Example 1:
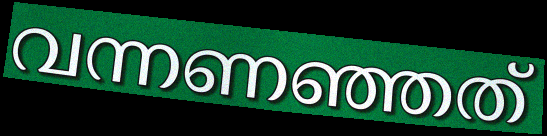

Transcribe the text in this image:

വന്നണഞ്ഞത്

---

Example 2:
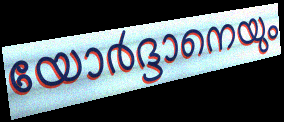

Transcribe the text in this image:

യോർദ്ദാനെയും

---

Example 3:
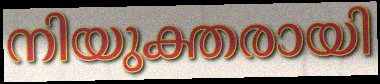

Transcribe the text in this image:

നിയുക്തരായി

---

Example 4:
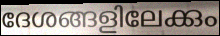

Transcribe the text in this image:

ദേശങ്ങളിലേക്കും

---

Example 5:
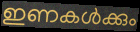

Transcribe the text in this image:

ഇണകൾക്കും